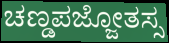
ಚಣ್ಡಪಜ್ಜೋತಸ್ಸ